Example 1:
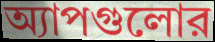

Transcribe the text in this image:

অ্যাপগুলোর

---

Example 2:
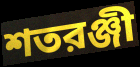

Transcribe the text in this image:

শতরঞ্জী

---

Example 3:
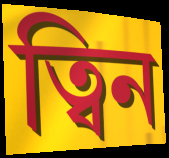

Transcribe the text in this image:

ত্বিন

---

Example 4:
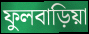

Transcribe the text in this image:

ফুলবাড়িয়া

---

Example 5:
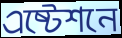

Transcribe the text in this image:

এষ্টেশনে